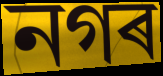
নগৰ